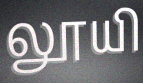
லூயி